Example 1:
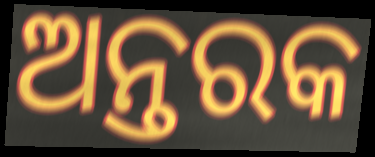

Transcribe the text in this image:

ଅନ୍ତରକ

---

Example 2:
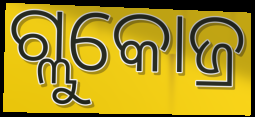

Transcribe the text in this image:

ଗ୍ଲୁକୋଜ୍ର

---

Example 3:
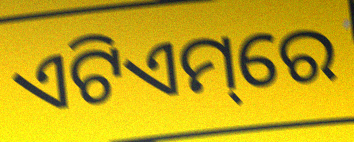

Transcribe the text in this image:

ଏଟିଏମ୍‌ରେ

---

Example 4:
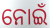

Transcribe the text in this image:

ନୋଇଁ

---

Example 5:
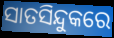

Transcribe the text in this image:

ସାତସିନ୍ଦୁକରେ